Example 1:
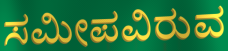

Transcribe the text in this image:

ಸಮೀಪವಿರುವ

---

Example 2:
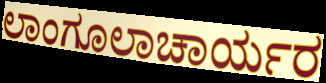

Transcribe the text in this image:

ಲಾಂಗೂಲಾಚಾರ್ಯರ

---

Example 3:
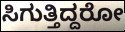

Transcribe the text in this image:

ಸಿಗುತ್ತಿದ್ದರೋ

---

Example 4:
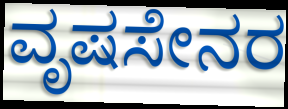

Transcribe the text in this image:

ವೃಷಸೇನರ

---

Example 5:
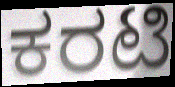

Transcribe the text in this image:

ಕರಟಿ